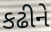
કઢીને